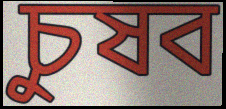
চুষব